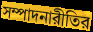
সম্পাদনারীতির